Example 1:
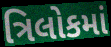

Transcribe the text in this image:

ત્રિલોકમાં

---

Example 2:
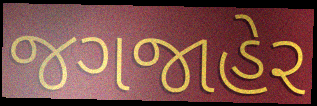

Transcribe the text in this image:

જગજાહેર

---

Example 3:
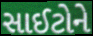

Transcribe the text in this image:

સાઈટોને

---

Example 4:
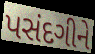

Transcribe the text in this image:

પસંદગીને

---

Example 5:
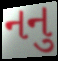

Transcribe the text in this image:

નનુ